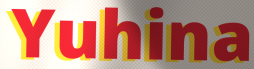
Yuhina